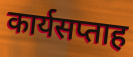
कार्यसप्ताह